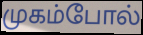
முகம்போல்